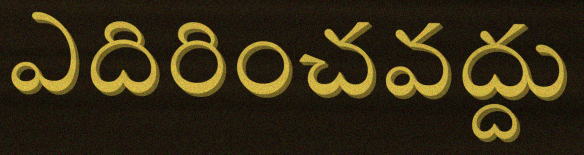
ఎదిరించవద్దు